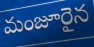
మంజూరైన